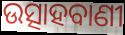
ଉତ୍ସାହବାଣୀ